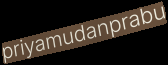
priyamudanprabu